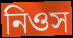
নিওস